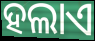
ହଲାଏ